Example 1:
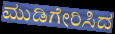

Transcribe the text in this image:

ಮುಡಿಗೇರಿಸಿದ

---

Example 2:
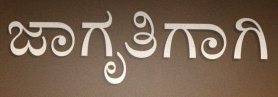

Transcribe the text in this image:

ಜಾಗೃತಿಗಾಗಿ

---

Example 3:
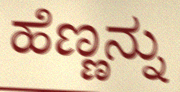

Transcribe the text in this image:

ಹೆಣ್ಣನ್ನು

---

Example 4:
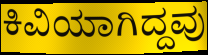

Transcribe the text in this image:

ಕಿವಿಯಾಗಿದ್ದವು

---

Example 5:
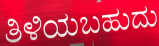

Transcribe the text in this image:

ತಿಳಿಯಬಹುದು